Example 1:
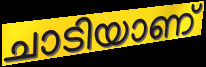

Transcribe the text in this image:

ചാടിയാണ്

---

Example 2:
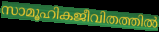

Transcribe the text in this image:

സാമൂഹികജീവിതത്തിൽ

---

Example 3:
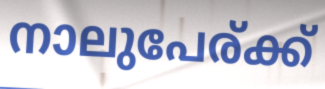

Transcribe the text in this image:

നാലുപേര്ക്ക്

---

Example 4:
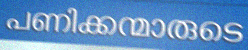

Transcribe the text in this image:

പണിക്കന്മാരുടെ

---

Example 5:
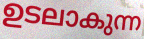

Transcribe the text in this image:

ഉടലാകുന്ന